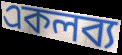
একলব্য